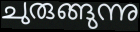
ചുരുങ്ങുന്നു